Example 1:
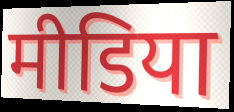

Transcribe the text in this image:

मीडिया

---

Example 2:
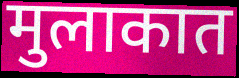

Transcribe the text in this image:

मुलाकात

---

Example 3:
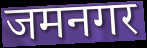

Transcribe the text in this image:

जमनगर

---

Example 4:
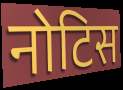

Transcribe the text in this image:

नोटिस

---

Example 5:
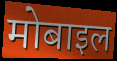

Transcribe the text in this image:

मोबाइल